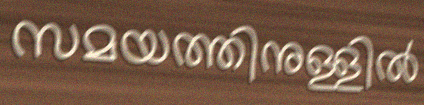
സമയത്തിനുള്ളിൽ